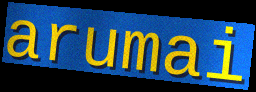
arumai